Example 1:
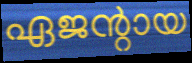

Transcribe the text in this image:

ഏജന്റായ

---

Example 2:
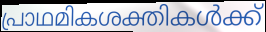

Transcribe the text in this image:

പ്രാഥമികശക്തികൾക്ക്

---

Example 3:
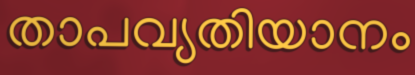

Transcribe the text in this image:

താപവ്യതിയാനം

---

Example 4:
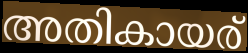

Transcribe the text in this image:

അതികായര്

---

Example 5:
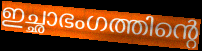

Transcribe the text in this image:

ഇച്ഛാഭംഗത്തിന്റെ